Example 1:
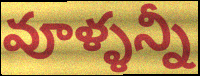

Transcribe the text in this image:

వూళ్ళన్నీ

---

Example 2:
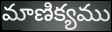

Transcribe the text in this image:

మాణిక్యము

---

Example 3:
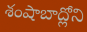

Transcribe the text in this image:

శంషాబాద్లోని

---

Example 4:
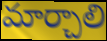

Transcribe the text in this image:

మార్చాలి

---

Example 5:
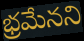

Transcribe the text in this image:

భ్రమేనని